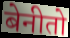
बेनीतो